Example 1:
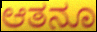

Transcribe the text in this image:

ಆತನೂ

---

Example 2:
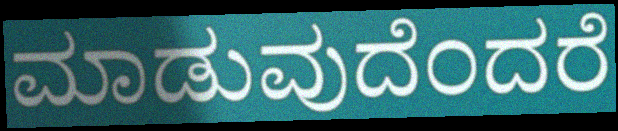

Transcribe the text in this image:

ಮಾಡುವುದೆಂದರೆ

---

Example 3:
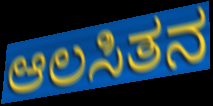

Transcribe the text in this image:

ಆಲಸಿತನ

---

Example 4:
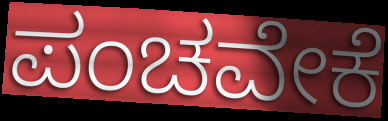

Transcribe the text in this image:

ಪಂಚವೇಕೆ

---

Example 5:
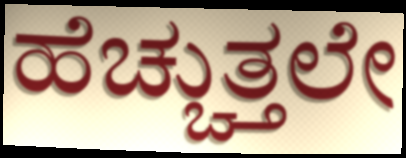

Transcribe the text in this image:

ಹೆಚ್ಚುತ್ತಲೇ